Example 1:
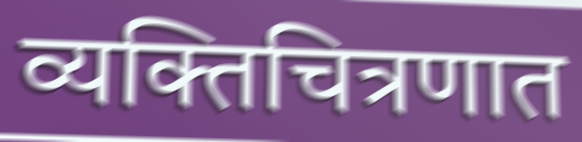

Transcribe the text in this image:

व्यक्तिचित्रणात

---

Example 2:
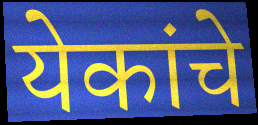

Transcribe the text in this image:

येकांचे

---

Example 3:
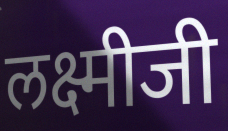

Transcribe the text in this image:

लक्ष्मीजी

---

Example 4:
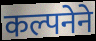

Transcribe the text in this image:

कल्पनेने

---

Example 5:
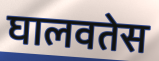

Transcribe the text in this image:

घालवतेस